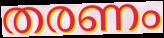
തരണം